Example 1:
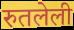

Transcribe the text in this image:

रुतलेली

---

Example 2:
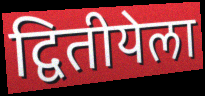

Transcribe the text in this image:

द्वितीयेला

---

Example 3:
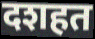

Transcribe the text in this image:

दशहत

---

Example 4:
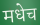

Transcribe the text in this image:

मधेच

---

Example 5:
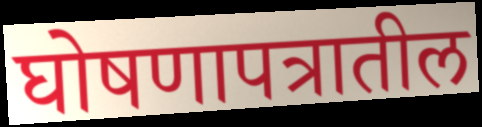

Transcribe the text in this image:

घोषणापत्रातील